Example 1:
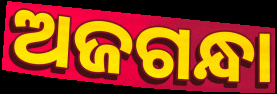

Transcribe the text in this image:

ଅଜଗନ୍ଧା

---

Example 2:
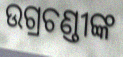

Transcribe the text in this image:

ଉଗ୍ରଚଣ୍ଡୀଙ୍କ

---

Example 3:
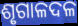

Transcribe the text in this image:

ଶୃଗାଳଦଳ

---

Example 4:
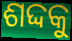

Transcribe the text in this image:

ଶଦ୍ଦକୁ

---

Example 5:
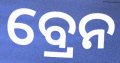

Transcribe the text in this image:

ବ୍ରେନ